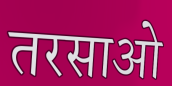
तरसाओ